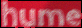
hume